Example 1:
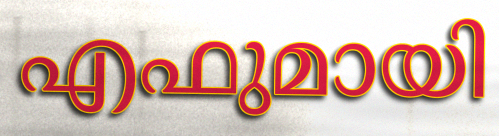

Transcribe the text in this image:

എഫുമായി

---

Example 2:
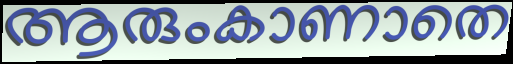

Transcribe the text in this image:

ആരുംകാണാതെ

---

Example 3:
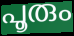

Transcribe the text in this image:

പൂരും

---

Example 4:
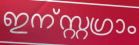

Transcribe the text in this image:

ഇന്സ്റ്റഗ്രാം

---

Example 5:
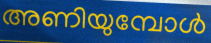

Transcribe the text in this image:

അണിയുമ്പോൾ